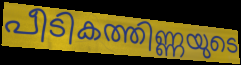
പീടികത്തിണ്ണയുടെ